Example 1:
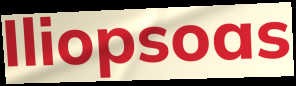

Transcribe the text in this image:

Iliopsoas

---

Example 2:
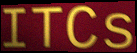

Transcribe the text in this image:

ITCs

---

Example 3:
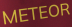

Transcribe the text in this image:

METEOR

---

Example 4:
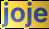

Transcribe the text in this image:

joje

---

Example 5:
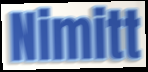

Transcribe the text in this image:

Nimitt